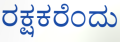
ರಕ್ಷಕರೆಂದು